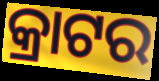
କ୍ରାଟର